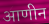
आणीन